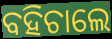
ବହିଚାଲେ